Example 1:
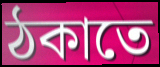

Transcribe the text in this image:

ঠকাতে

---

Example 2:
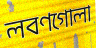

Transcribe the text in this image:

লবণগোলা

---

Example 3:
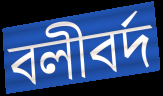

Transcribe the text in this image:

বলীবর্দ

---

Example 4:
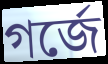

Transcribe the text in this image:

গর্জে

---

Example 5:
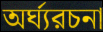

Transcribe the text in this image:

অর্ঘ্যরচনা